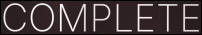
COMPLETE